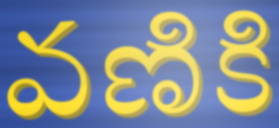
వణికి